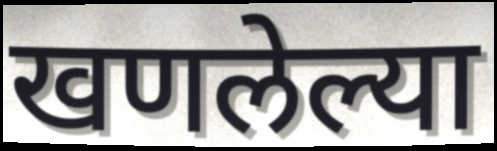
खणलेल्या